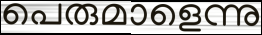
പെരുമാളെന്നു